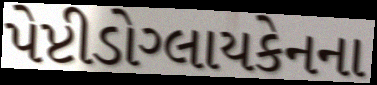
પેપ્ટીડોગ્લાયકેનના